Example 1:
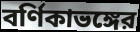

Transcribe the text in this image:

বর্ণিকাভঙ্গের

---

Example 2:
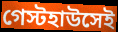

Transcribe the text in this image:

গেস্টহাউসেই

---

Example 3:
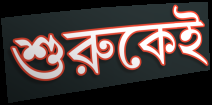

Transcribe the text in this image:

শুরুকেই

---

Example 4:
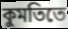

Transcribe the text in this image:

কুমতিতে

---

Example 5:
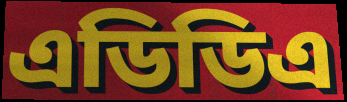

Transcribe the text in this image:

এডিডিএ